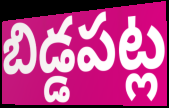
బిడ్డపట్ల